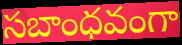
సబాంధవంగా